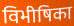
विभीषिका